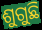
ଶୁଗୁଛି